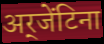
अर्जेंटिना